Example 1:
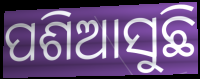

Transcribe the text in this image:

ପଶିଆସୁଛି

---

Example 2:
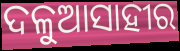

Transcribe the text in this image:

ଦଳୁଆସାହୀର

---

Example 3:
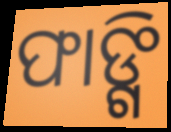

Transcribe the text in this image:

ଫାଙ୍ଗି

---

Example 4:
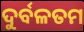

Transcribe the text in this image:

ଦୁର୍ବଳତମ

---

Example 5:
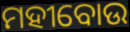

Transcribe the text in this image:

ମହୀବୋଉ